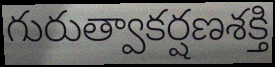
గురుత్వాకర్షణశక్తి